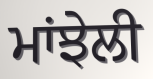
ਮਾਂਝੇਲੀ